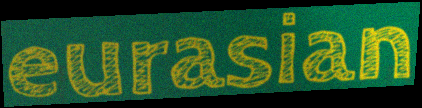
eurasian